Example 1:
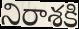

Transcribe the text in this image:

నిరాశకి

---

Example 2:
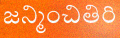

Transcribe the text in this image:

జన్మించితిరి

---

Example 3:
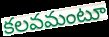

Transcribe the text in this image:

కలవమంటూ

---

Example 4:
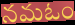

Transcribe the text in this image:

నమఓం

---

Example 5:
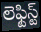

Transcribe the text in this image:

లెఫ్టిస్ట్